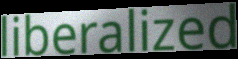
liberalized